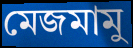
মেজমামু